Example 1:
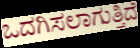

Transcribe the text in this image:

ಒದಗಿಸಲಾಗುತ್ತಿದೆ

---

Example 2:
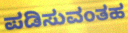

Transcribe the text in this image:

ಪಡಿಸುವಂತಹ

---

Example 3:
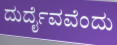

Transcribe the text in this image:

ದುರ್ದೈವವೆಂದು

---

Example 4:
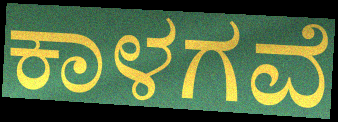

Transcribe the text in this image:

ಕಾಳಗವೆ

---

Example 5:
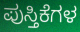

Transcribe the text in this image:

ಪುಸ್ತಿಕೆಗಳ